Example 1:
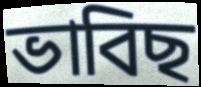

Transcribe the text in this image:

ভাবিছ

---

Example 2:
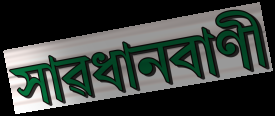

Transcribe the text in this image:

সাৱধানবাণী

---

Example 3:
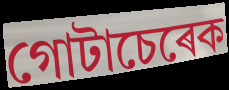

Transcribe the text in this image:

গোটাচেৰেক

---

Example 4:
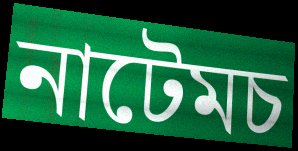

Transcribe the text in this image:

নাটেমচ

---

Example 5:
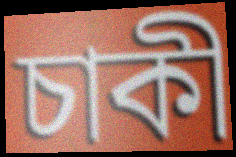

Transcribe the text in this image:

চাকী